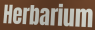
Herbarium